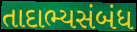
તાદાભ્યસંબંધ